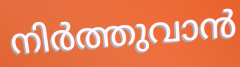
നിർത്തുവാൻ